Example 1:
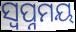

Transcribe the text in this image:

ସ୍ଵପ୍ନମୟ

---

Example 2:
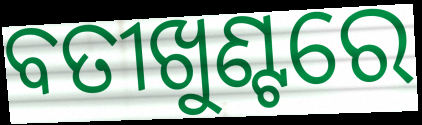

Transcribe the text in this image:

ବତୀଖୁଣ୍ଟରେ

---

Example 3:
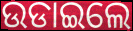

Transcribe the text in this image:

ଉଡାଇଲେ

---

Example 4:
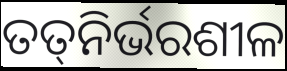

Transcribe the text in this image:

ତତ୍‍ନିର୍ଭରଶୀଳ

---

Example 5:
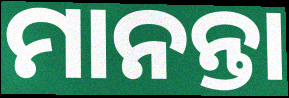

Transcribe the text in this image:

ମାନନ୍ତା